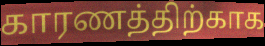
காரணத்திற்காக